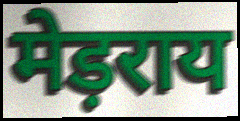
मेड़राय